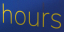
hours